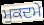
ਮੁਕਦਮੇ